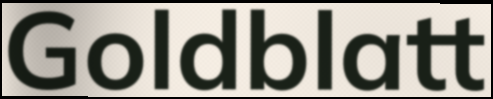
Goldblatt